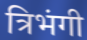
त्रिभंगी